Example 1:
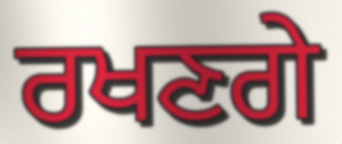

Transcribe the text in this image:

ਰਖਣਗੇ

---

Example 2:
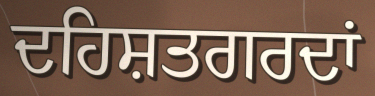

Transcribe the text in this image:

ਦਹਿਸ਼ਤਗਰਦਾਂ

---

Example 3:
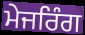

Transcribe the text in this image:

ਮੇਜਰਿੰਗ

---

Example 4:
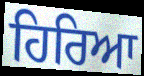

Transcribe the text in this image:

ਹਿਰਿਆ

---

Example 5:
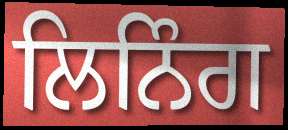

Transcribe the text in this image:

ਲਿਨਿੰਗ